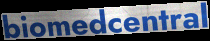
biomedcentral